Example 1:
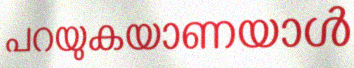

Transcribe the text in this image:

പറയുകയാണയാൾ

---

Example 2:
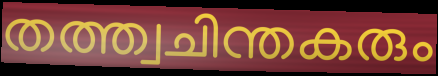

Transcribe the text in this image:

തത്ത്വചിന്തകരും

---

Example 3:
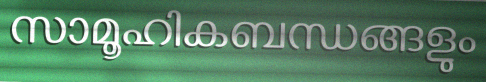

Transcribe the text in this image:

സാമൂഹികബന്ധങ്ങളും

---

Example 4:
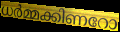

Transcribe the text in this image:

ധർമ്മക്കിണറോ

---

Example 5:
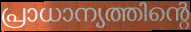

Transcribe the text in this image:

പ്രാധാന്യത്തിന്റെ